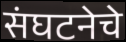
संघटनेचे